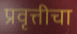
प्रवृत्तीचा